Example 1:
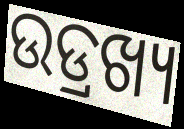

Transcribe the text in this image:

ଉଡ୍ରଖ୍ୟ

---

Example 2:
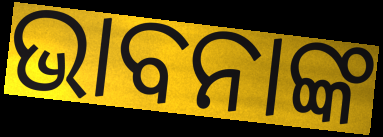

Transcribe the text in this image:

ଭାବନାଙ୍କ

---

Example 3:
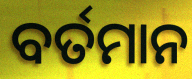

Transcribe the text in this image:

ବର୍ତମାନ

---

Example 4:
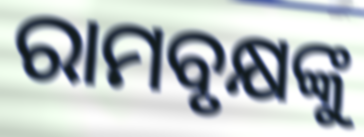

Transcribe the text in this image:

ରାମବୃକ୍ଷଙ୍କୁ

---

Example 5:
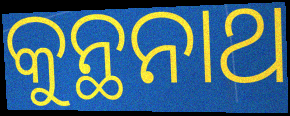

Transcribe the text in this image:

କୁନ୍ଥନାଥ